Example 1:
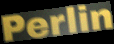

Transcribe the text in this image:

Perlin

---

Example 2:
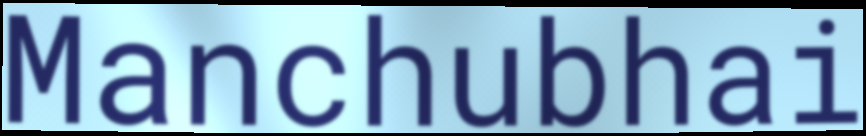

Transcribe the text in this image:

Manchubhai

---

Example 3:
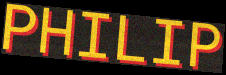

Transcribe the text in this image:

PHILIP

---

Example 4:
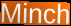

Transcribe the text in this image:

Minch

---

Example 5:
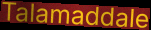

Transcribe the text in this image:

Talamaddale